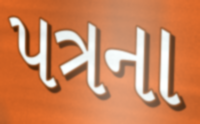
પત્રના